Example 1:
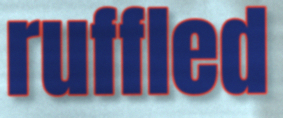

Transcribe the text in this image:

ruffled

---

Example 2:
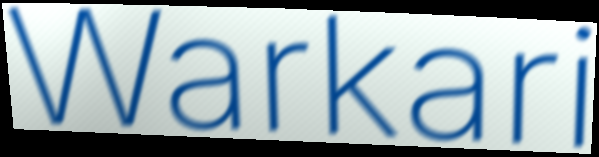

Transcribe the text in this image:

Warkari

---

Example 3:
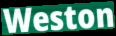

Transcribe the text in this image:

Weston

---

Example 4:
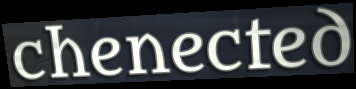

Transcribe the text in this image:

chenected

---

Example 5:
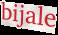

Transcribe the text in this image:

bijale